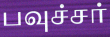
பவுச்சர்